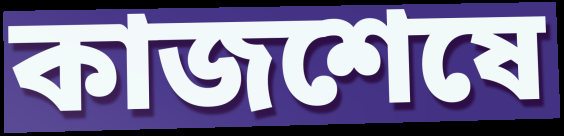
কাজশেষে